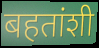
बहतांशी